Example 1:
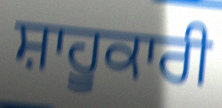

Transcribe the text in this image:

ਸ਼ਾਹੂਕਾਰੀ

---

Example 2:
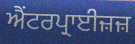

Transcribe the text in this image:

ਐਂਟਰਪ੍ਰਾਈਜ਼ਜ਼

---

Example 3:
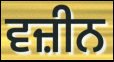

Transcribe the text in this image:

ਵਜ਼ੀਨ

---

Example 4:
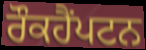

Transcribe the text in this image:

ਰੌਕਹੈਂਪਟਨ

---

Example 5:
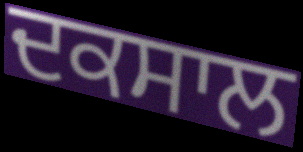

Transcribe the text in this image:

ਦਕਸਾਲ